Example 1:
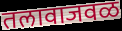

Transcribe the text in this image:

तलावाजवळ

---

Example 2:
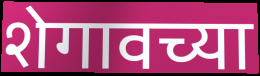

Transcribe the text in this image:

शेगावच्या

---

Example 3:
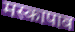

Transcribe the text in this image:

मस्कापाव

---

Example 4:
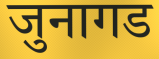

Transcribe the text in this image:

जुनागड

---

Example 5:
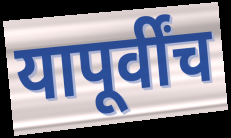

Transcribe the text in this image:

यापूर्वींच